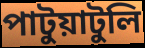
পাটুয়াটুলি